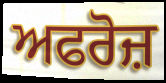
ਅਫਰੋਜ਼